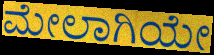
ಮೇಲಾಗಿಯೇ